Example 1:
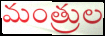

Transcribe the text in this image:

మంత్రుల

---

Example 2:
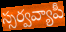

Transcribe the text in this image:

స్సర్వవ్యాపీ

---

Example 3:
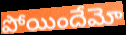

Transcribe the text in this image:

పోయిందేమో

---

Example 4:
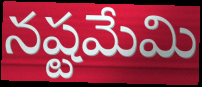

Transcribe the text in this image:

నష్టమేమి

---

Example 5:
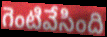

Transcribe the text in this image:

గెంటివేసింది